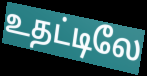
உதட்டிலே